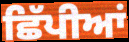
ਛਿੱਪੀਆਂ